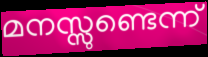
മനസ്സുണ്ടെന്ന്